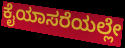
ಕೈಯಾಸರೆಯಲ್ಲೇ